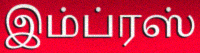
இம்ப்ரஸ்